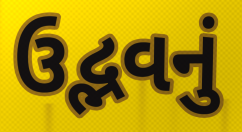
ઉદ્ભવનું